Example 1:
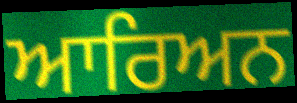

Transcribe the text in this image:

ਆਰਿਅਨ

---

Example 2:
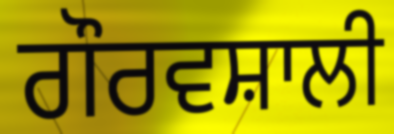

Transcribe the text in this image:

ਗੌਰਵਸ਼ਾਲੀ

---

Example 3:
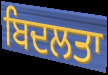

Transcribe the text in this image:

ਬਿਦਲਤਾ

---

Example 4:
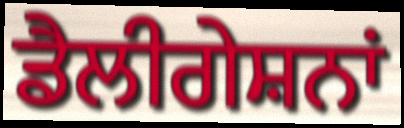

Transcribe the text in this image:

ਡੈਲੀਗੇਸ਼ਨਾਂ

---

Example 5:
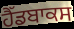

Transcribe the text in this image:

ਹੈੱਡਬਾਕਸ